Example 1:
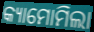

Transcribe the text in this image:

କ୍ୟାମୋମିଲା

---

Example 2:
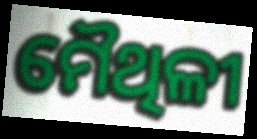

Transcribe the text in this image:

ମୈଥିଳୀ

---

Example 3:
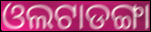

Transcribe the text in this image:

ଓଲଟାଡଙ୍ଗା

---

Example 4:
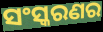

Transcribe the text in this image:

ସଂସ୍କରଣର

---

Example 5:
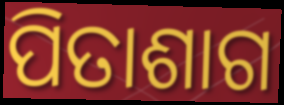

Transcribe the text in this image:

ପିତାଶାଗ